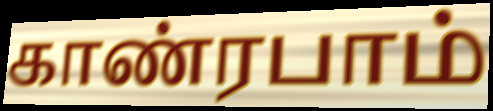
காண்ரபாம்